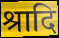
श्रादि